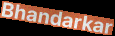
Bhandarkar